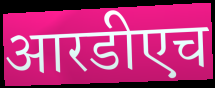
आरडीएच